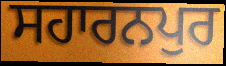
ਸਹਾਰਨਪੁਰ